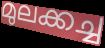
മുലക്കച്ച